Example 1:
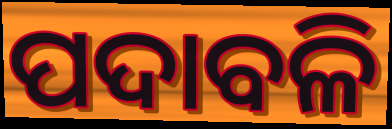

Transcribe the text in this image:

ପଦାବଳି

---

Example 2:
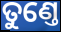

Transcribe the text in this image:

ତୁଣ୍ତେ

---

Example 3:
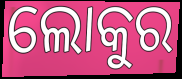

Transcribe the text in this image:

ଲୋକୁର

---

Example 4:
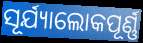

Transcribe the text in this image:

ସୂର୍ଯ୍ୟାଲୋକପୂର୍ଣ୍ଣ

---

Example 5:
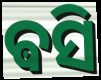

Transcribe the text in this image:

ଵସି